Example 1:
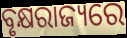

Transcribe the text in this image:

ବୃକ୍ଷରାଜ୍ୟରେ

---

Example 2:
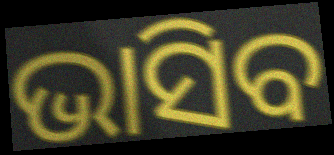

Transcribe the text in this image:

ଭାସିବ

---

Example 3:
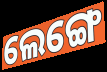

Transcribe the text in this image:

ଲେଙ୍ଗେ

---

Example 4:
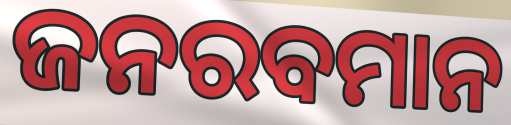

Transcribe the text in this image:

ଜନରବମାନ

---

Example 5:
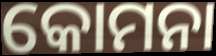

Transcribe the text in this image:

କୋମନା